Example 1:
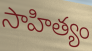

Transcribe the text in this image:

సాహిత్యం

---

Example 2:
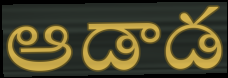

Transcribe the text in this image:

ఆడాడ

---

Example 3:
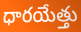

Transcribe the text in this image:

ధారయేత్తు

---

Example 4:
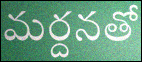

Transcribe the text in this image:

మర్దనతో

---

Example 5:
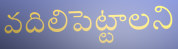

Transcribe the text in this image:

వదిలిపెట్టాలని